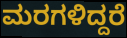
ಮರಗಳಿದ್ದರೆ